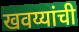
खवय्यांची